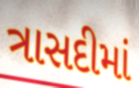
ત્રાસદીમાં